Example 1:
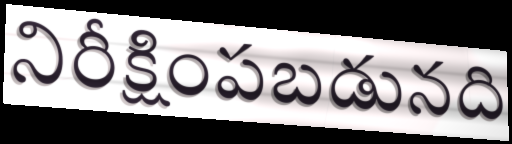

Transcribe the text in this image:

నిరీక్షింపబడునది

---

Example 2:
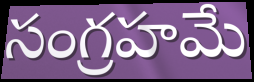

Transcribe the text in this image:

సంగ్రహమే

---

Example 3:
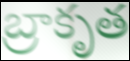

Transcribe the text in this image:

బ్రాకృత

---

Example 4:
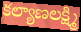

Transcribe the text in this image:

కల్యాణలక్ష్మి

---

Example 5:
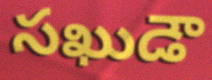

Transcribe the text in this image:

సఖుడౌ